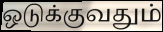
ஒடுக்குவதும்